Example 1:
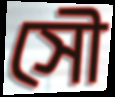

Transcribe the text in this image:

সৌ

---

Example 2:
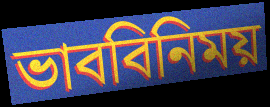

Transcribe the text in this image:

ভাববিনিময়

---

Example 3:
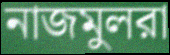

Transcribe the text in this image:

নাজমুলরা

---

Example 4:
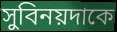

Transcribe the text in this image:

সুবিনয়দাকে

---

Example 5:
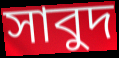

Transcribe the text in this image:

সাবুদ